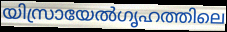
യിസ്രായേൽഗൃഹത്തിലെ